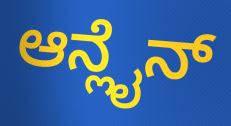
ಆನ್ಲೈನ್